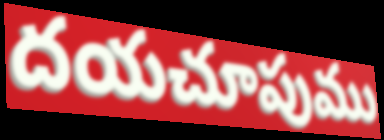
దయచూపుము